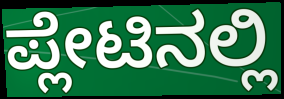
ಪ್ಲೇಟಿನಲ್ಲಿ